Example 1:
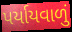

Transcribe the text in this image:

પર્યાયવાળું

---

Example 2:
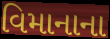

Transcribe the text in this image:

વિમાનાના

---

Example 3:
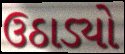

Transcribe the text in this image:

ઉઠાડ્યો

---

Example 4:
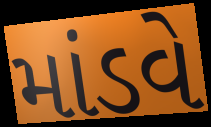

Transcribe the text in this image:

માંડવે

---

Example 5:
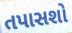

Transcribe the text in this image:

તપાસશો